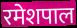
रमेशपाल